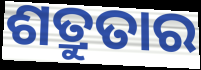
ଶତ୍ରୁତାର